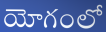
యోగంలో